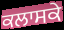
ਕਲਾਸਕੇ